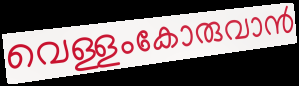
വെള്ളംകോരുവാൻ